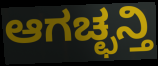
ಆಗಚ್ಛನ್ತಿ